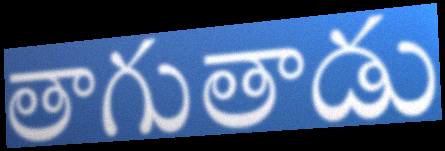
తాగుతాడు